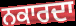
ਨਕਾਰਦਾ